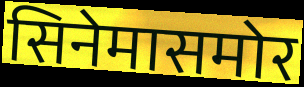
सिनेमासमोर